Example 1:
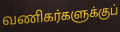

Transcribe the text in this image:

வணிகர்களுக்குப்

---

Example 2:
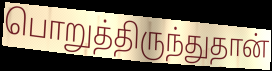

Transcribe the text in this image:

பொறுத்திருந்துதான்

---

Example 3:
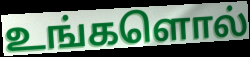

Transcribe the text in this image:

உங்களொல்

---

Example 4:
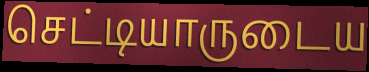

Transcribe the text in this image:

செட்டியாருடைய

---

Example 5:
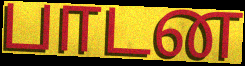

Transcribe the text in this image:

பாடன